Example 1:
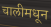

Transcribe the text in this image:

चालीमधून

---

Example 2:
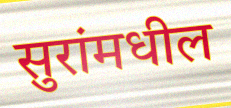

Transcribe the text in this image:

सुरांमधील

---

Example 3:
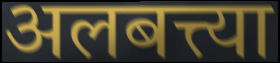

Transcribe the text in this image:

अलबत्त्या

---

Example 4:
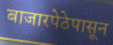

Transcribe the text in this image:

बाजारपेठेपासून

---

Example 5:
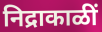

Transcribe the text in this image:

निद्राकाळीं